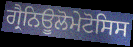
ਗ੍ਰੈਨਿਊਲੋਮੇਟੋਸਿਸ